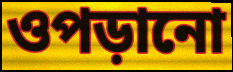
ওপড়ানো